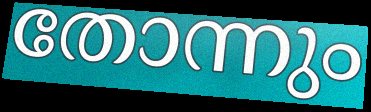
തോന്നും